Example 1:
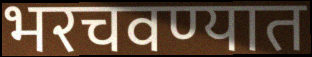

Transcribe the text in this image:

भरचवण्यात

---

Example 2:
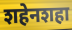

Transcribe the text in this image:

शहेनशहा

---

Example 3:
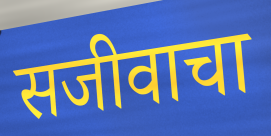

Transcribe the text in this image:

सजीवाचा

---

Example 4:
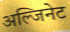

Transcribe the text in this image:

अल्जिनेट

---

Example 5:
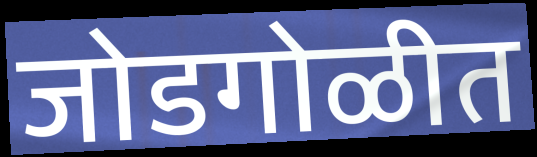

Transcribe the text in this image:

जोडगोळीत